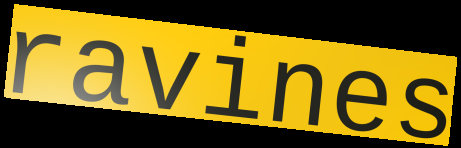
ravines